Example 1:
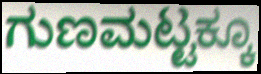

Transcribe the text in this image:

ಗುಣಮಟ್ಟಕ್ಕೂ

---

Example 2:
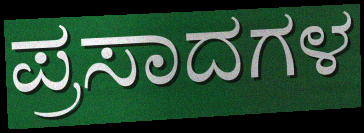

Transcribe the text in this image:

ಪ್ರಸಾದಗಳ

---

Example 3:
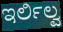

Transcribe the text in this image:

ಇರ್ಲಿಲ್ವ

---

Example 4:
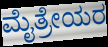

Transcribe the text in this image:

ಮೈತ್ರೇಯರ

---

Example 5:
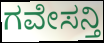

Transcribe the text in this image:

ಗವೇಸನ್ತಿ